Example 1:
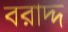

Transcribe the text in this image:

বরাদ্দ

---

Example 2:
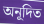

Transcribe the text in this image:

অনূদিত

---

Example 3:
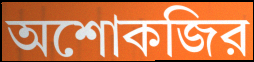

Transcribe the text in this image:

অশোকজির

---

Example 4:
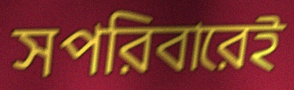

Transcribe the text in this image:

সপরিবারেই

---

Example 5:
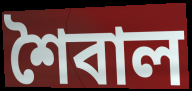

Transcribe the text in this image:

শৈবাল